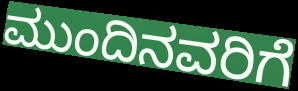
ಮುಂದಿನವರಿಗೆ